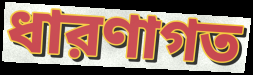
ধারণাগত